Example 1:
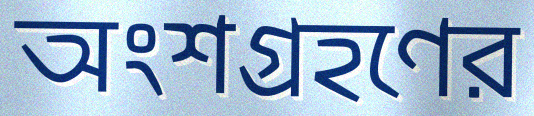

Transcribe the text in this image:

অংশগ্রহণের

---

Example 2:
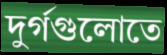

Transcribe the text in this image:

দুর্গগুলোতে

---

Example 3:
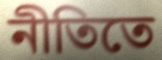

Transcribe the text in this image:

নীতিতে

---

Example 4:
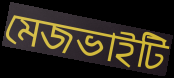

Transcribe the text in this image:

মেজভাইটি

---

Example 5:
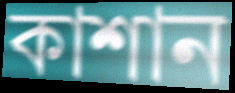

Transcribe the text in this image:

কাশান